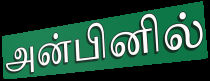
அன்பினில்